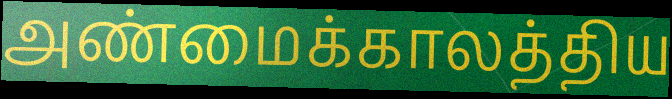
அண்மைக்காலத்திய